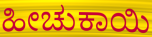
ಹೀಚುಕಾಯಿ